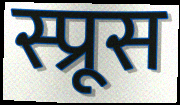
स्प्रूस